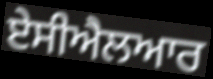
ਏਸੀਐਲਆਰ